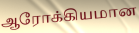
ஆரோக்கியமான